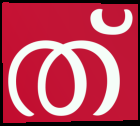
ത്